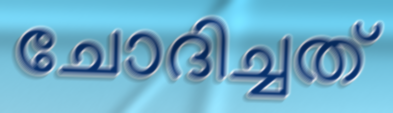
ചോദിച്ചത്